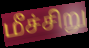
மீச்சிறு